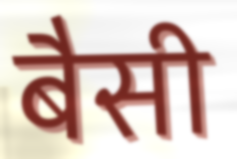
बैसी